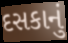
દસકાનું